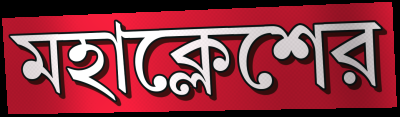
মহাক্লেশের